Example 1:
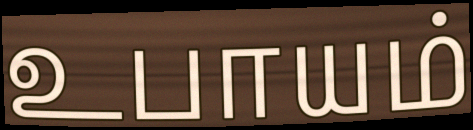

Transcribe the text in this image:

உபாயம்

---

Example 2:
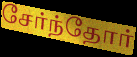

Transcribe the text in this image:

சேர்ந்தோர்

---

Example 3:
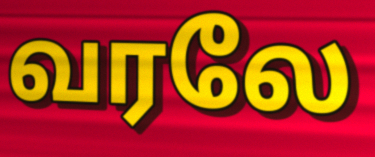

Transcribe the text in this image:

வரலே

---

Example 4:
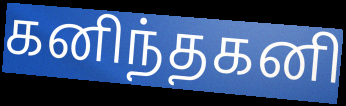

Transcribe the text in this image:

கனிந்தகனி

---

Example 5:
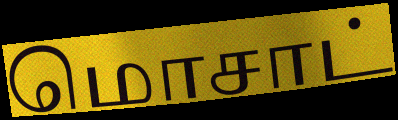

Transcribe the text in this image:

மொசாட்